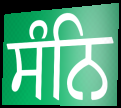
ਸੰਨਿ